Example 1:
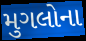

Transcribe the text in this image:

મુગલોના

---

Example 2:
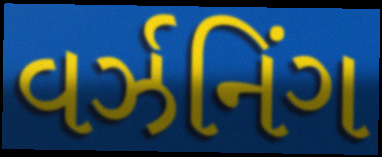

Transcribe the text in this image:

વર્ઝનિંગ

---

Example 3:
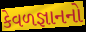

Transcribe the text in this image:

કેવળજ્ઞાનનો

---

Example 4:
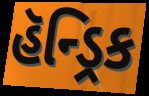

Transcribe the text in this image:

હૅન્ડ્રિક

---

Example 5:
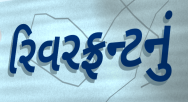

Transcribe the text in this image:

રિવરફ્રન્ટનું